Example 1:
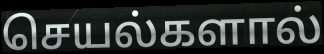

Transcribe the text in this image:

செயல்களால்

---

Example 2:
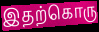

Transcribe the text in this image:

இதற்கொரு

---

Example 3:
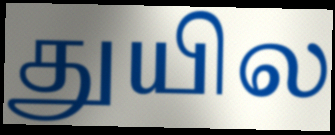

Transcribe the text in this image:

துயில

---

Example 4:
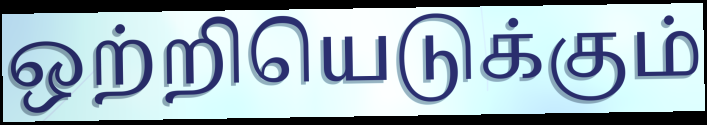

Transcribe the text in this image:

ஒற்றியெடுக்கும்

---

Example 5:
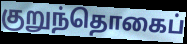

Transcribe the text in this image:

குறுந்தொகைப்